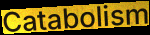
Catabolism